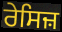
ਰੇਸਿਜ਼